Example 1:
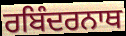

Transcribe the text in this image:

ਰਬਿੰਦਰਨਾਥ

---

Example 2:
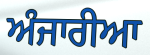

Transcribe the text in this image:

ਅੰਜਾਰੀਆ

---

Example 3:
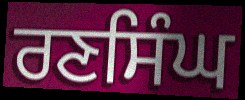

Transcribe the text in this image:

ਰਣਸਿੰਘ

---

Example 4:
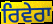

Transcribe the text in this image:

ਰਿਵੇਰਾ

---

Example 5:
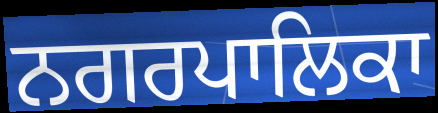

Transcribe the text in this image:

ਨਗਰਪਾਲਿਕਾ